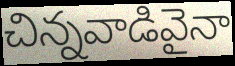
చిన్నవాడివైనా